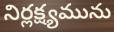
నిర్లక్ష్యమును